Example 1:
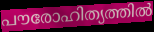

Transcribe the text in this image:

പൗരോഹിത്യത്തിൽ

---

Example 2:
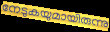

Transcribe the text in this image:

നേടുകയുമായിരുന്നു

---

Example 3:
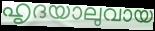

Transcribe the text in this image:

ഹൃദയാലുവായ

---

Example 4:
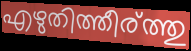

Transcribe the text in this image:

എഴുതിത്തീര്ത്തു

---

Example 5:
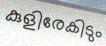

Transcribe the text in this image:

കുളിരേകിടും